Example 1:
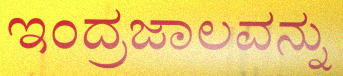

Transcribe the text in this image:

ಇಂದ್ರಜಾಲವನ್ನು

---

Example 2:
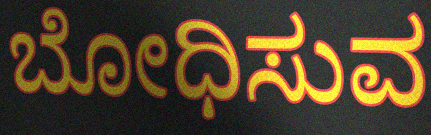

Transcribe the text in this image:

ಬೋಧಿಸುವ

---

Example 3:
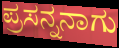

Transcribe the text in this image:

ಪ್ರಸನ್ನನಾಗು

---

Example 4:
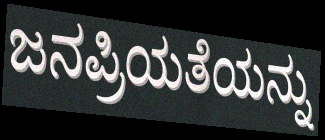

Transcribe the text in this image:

ಜನಪ್ರಿಯತೆಯನ್ನು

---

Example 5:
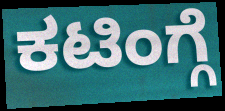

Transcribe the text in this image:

ಕಟಿಂಗ್ಗೆ